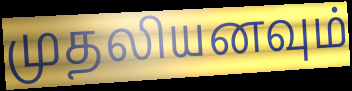
முதலியனவும்